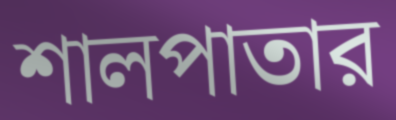
শালপাতার